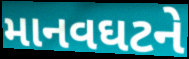
માનવઘટને